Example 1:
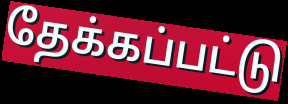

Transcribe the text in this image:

தேக்கப்பட்டு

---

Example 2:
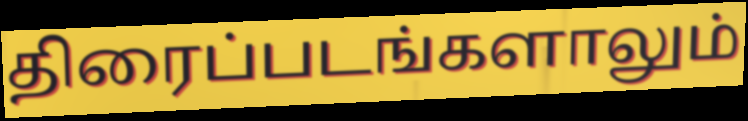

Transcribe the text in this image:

திரைப்படங்களாலும்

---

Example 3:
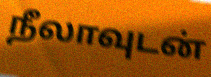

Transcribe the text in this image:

நீலாவுடன்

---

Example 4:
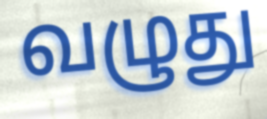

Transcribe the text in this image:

வழுது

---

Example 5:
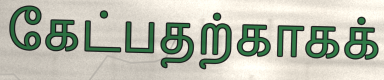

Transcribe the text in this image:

கேட்பதற்காகக்